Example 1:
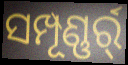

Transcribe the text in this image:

ସମ୍ପୂଣ୍ଣର୍ର୍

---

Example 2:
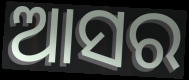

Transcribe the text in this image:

ଆସର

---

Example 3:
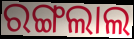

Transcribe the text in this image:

ରଙ୍ଗଲାଲ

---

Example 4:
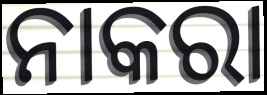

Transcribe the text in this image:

ନାକରା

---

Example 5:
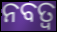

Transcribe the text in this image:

ନବତ୍ଵ